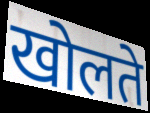
खोलते